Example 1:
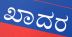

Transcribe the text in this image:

ಖಾದರ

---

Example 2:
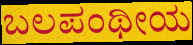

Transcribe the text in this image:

ಬಲಪಂಥೀಯ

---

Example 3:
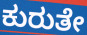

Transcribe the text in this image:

ಕುರುತೇ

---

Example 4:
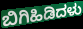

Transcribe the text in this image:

ಬಿಗಿಹಿಡಿದಳು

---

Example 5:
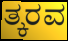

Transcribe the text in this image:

ತ್ಕರವ